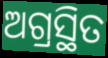
ଅଗ୍ରସ୍ଥିତ